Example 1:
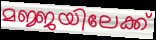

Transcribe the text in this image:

മജ്ജയിലേക്ക്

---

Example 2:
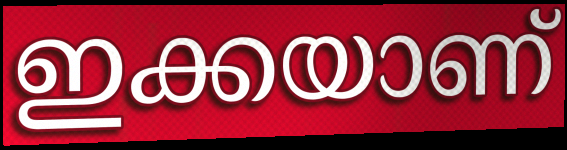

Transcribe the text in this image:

ഇക്കയാണ്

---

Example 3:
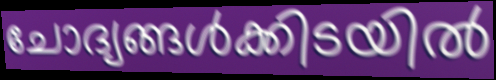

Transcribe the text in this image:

ചോദ്യങ്ങൾക്കിടയിൽ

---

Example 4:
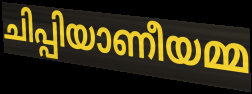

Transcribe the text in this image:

ചിപ്പിയാണീയമ്മ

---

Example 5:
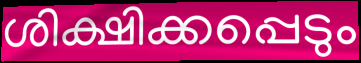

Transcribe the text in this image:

ശിക്ഷിക്കപ്പെടും